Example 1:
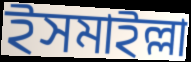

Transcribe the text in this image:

ইসমাইল্লা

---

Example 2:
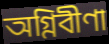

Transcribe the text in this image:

অগ্নিবীণা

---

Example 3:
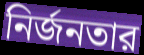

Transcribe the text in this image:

নির্জনতার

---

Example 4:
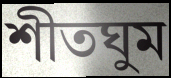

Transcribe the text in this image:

শীতঘুম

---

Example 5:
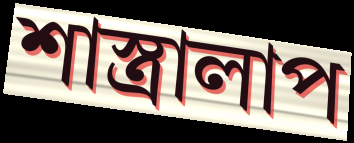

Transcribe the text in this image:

শাস্ত্রালাপ